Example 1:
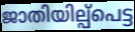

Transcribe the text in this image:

ജാതിയില്പ്പെട്ട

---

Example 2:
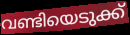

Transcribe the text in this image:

വണ്ടിയെടുക്ക്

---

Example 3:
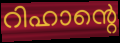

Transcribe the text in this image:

റിഹാന്റെ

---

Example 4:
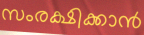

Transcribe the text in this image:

സംരക്ഷിക്കാൻ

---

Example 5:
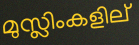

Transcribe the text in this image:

മുസ്ലിംകളില്